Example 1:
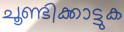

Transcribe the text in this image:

ചൂണ്ടിക്കാട്ടുക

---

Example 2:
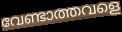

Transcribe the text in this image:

വേണ്ടാത്തവളെ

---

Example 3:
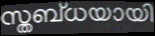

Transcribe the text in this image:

സ്തബ്ധയായി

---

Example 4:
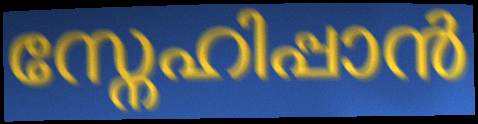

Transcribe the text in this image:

സ്നേഹിപ്പാൻ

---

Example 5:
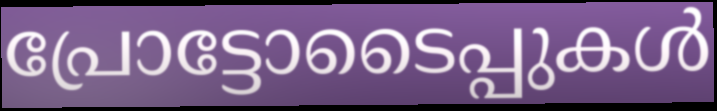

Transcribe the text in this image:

പ്രോട്ടോടൈപ്പുകൾ